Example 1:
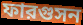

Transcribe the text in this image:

ফারগুসন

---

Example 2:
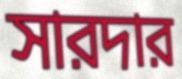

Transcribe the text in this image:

সারদার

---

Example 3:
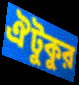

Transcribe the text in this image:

ঐটুকুর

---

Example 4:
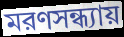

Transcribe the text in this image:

মরণসন্ধ্যায়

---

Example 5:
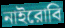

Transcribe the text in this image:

নাইরোবি